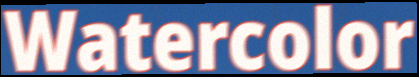
Watercolor